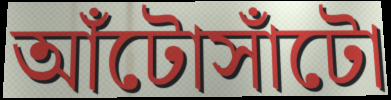
আঁটোসাঁটো